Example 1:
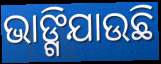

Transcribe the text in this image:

ଭାଙ୍ଗିଯାଉଛି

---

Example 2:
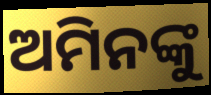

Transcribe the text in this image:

ଅମିନଙ୍କୁ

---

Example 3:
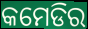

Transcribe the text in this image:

କମେଡିର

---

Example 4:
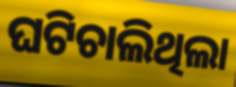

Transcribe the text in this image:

ଘଟିଚାଲିଥିଲା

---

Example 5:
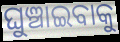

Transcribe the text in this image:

ଘୁଞ୍ଚାଇବାକୁ